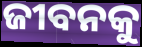
ଜୀବନକୁ